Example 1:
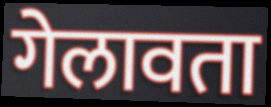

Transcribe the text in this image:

गेलावता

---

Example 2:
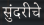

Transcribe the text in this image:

सुंदरीचे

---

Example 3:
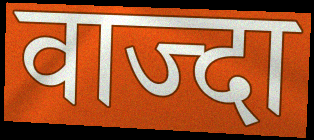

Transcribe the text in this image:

वाज्दा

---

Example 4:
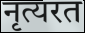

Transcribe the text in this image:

नृत्यरत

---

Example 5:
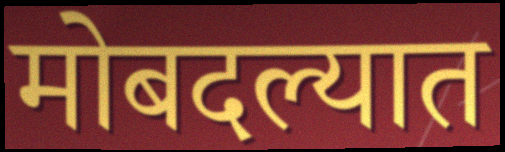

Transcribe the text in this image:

मोबदल्यात